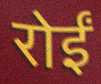
रोईं